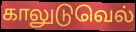
காலுடுவெல்